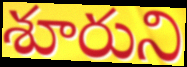
శూరుని